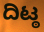
ದಿಟ್ಠ